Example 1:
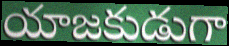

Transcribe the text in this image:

యాజకుడుగా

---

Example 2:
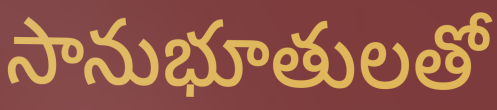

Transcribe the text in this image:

సానుభూతులతో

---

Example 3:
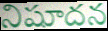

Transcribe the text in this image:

నిషూదన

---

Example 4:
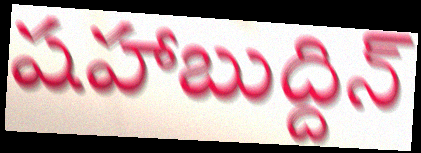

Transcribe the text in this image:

షహాబుద్దిన్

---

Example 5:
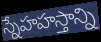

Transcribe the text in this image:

స్నేహహస్తాన్ని